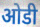
ओडी